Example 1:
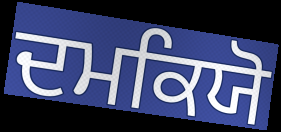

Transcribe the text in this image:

ਦਮਕਿਯੋ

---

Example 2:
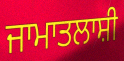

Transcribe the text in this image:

ਜਾਮਾਤਲਾਸ਼ੀ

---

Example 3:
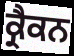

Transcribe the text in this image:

ਕ੍ਰੈਕਨ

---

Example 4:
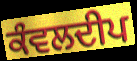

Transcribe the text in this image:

ਕੰਵਲਦੀਪ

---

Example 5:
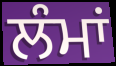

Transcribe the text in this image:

ਲੰਮਾਂ